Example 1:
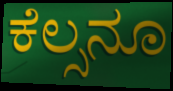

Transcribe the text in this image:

ಕೆಲ್ಸನೂ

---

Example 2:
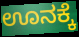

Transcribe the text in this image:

ಊನಕ್ಕೆ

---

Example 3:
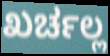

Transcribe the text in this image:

ಖರ್ಚಲ್ಲ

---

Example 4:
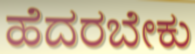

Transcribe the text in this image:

ಹೆದರಬೇಕು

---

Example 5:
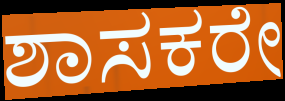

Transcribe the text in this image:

ಶಾಸಕರೇ